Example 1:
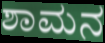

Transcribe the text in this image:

ಶಾಮನ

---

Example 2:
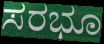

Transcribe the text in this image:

ಸರಭೂ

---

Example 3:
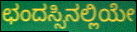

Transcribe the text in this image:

ಛಂದಸ್ಸಿನಲ್ಲಿಯೇ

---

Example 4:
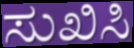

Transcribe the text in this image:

ಸುಖಿಸಿ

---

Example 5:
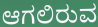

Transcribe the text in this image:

ಆಗಲಿರುವ